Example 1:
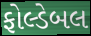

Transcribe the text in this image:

ફોલ્ડેબલ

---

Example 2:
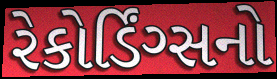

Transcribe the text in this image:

રેકોર્ડિંગ્સનો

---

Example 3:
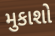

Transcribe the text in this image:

મુકાશો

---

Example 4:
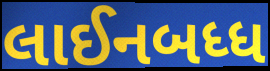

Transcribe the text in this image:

લાઈનબધ્ધ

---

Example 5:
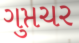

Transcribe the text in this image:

ગુપ્તચર